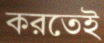
করতেই